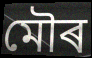
মৌৰ